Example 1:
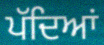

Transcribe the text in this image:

ਪੱਦਿਆਂ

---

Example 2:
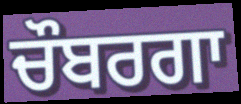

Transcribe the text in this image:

ਚੌਬਰਗਾ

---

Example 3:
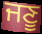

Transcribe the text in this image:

ਜਣੂ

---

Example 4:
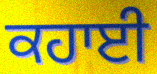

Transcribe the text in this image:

ਕਹਾਈ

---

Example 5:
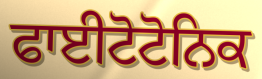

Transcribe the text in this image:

ਫਾਈਟੋਟੋਨਿਕ